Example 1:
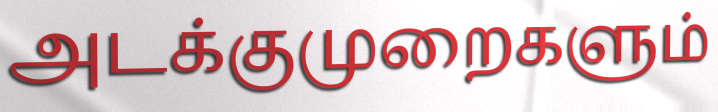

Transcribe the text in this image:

அடக்குமுறைகளும்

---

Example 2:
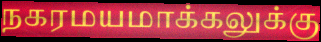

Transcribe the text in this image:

நகரமயமாக்கலுக்கு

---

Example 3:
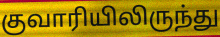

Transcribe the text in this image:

குவாரியிலிருந்து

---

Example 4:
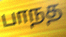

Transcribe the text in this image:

பாநத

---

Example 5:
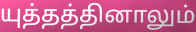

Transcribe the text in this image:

யுத்தத்தினாலும்